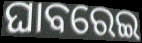
ଘାବରେଇ